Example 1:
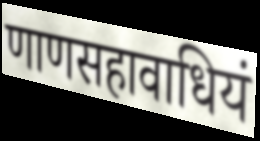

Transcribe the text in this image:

णाणसहावाधियं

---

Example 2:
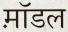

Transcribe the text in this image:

म़ॉडल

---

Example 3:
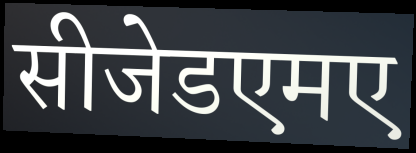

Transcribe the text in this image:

सीजेडएमए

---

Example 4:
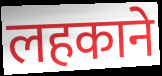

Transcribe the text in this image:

लहकाने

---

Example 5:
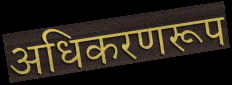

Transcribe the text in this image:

अधिकरणरूप